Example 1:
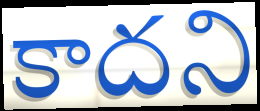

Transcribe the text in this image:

కాదని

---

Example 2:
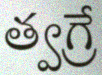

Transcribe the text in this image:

త్వగ్రే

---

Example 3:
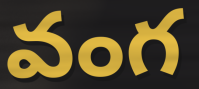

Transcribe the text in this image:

వంగ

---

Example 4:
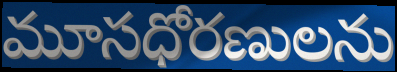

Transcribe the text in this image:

మూసధోరణులను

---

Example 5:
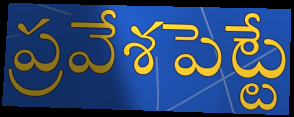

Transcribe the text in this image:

ప్రవేశపెట్టే